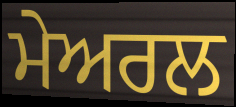
ਮੇਅਰਲ